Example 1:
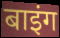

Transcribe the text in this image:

बाइंग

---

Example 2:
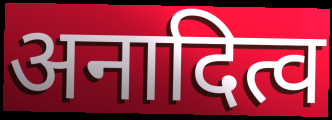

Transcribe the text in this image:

अनादित्व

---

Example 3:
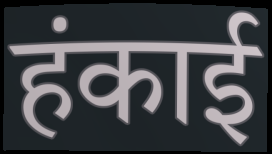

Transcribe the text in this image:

हंकाई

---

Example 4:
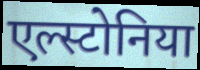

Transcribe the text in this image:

एल्स्टोनिया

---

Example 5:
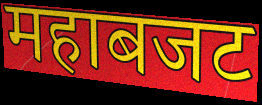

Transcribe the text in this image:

महाबजट